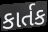
કાર્તક